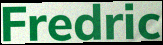
Fredric